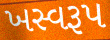
ખસ્વરૂપ